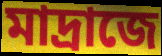
মাদ্রাজে